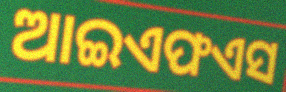
ଆଇଏଫଏସ